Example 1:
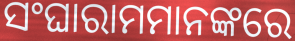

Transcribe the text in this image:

ସଂଘାରାମମାନଙ୍କରେ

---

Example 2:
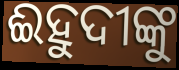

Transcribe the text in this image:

ଈହୁଦୀଙ୍କୁ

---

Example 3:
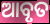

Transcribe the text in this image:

ଆବୃତ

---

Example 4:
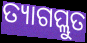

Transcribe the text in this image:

ତ୍ୟାଗପ୍ଲୁତ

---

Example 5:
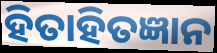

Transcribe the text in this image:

ହିତାହିତଜ୍ଞାନ